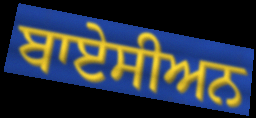
ਬਾਏਸੀਅਨ